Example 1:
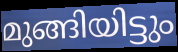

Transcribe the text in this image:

മുങ്ങിയിട്ടും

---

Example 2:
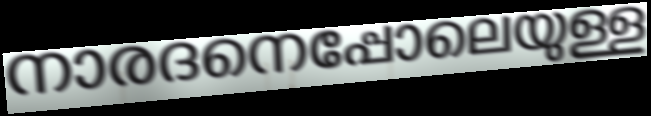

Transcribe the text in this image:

നാരദനെപ്പോലെയുള്ള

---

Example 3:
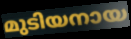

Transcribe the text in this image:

മുടിയനായ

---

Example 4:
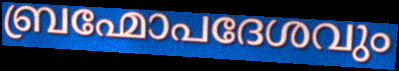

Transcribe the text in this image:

ബ്രഹ്മോപദേശവും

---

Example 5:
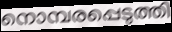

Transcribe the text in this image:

നൊമ്പരപ്പെടുത്തി